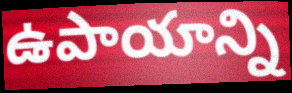
ఉపాయాన్ని